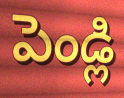
పెండ్లి